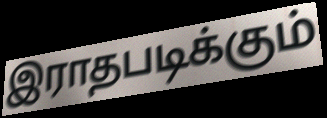
இராதபடிக்கும்